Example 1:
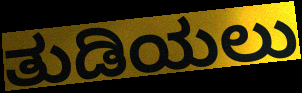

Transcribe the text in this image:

ತುಡಿಯಲು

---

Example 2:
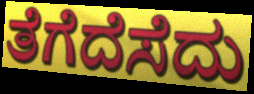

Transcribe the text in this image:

ತೆಗೆದೆಸೆದು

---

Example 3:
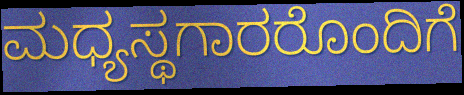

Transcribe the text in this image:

ಮಧ್ಯಸ್ಥಗಾರರೊಂದಿಗೆ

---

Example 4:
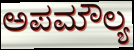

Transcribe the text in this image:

ಅಪಮೌಲ್ಯ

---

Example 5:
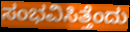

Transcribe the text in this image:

ಸಂಭವಿಸಿತ್ತೆಂದು